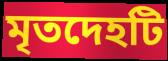
মৃতদেহটি